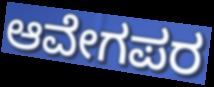
ಆವೇಗಪರ